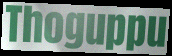
Thoguppu